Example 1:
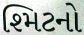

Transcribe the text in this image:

શ્મિટનો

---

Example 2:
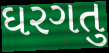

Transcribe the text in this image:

ઘરગતુ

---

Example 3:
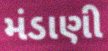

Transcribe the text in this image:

મંડાણી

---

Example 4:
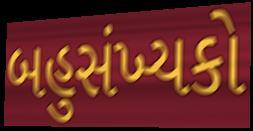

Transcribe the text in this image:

બહુસંખ્યકો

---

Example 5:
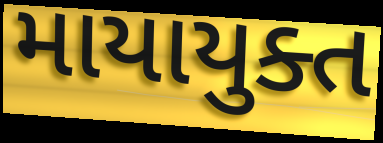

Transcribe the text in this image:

માયાયુક્ત